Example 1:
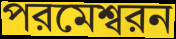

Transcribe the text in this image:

পরমেশ্বরন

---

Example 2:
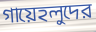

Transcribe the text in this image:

গায়েহলুদের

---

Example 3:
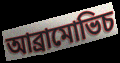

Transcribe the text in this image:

আব্রামোভিচ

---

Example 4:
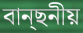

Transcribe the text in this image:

বান্ছনীয়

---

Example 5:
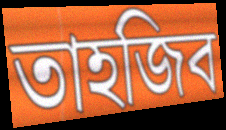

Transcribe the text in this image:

তাহজিব